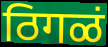
ठिगळं